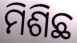
ମିଶିଛ